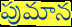
పుమాన